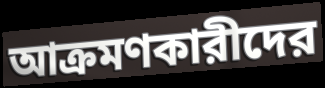
আক্রমণকারীদের